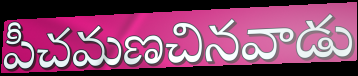
పీచమణచినవాడు